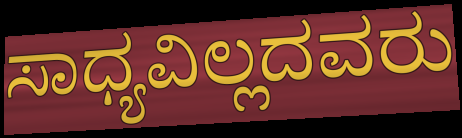
ಸಾಧ್ಯವಿಲ್ಲದವರು